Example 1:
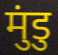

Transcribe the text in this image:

मुंडु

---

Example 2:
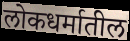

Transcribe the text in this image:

लोकधर्मातील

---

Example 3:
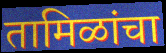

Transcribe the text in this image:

तामिळांचा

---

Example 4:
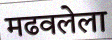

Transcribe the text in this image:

मढवलेला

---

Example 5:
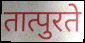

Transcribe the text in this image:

तात्पुरते